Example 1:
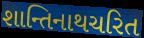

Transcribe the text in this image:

શાન્તિનાથચરિત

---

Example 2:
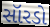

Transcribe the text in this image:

સૉરડો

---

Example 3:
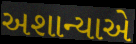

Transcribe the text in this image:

અશાન્યાએ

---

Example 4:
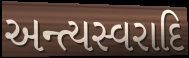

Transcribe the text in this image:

અન્ત્યસ્વરાદિ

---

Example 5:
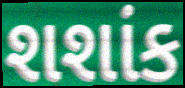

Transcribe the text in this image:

શશાંક